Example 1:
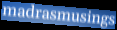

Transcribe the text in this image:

madrasmusings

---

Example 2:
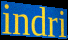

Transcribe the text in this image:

indri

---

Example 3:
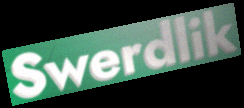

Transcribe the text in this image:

Swerdlik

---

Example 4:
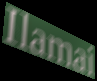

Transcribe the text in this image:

Ilamai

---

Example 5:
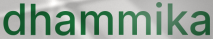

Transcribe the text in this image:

dhammika